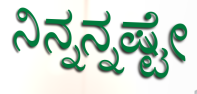
ನಿನ್ನನ್ನಷ್ಟೇ